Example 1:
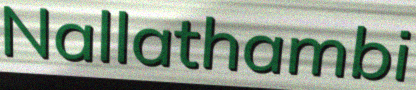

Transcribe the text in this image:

Nallathambi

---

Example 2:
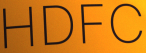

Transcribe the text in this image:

HDFC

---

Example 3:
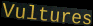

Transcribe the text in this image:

Vultures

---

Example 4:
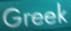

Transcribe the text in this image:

Greek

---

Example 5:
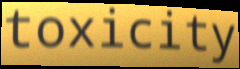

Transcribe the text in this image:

toxicity